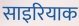
साइरियाक